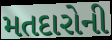
મતદારોની